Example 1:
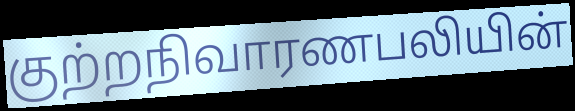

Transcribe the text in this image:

குற்றநிவாரணபலியின்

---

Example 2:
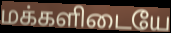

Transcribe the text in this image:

மக்களிடையே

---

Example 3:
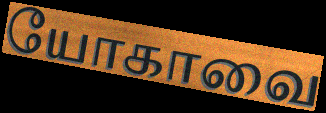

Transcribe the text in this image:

யோகாவை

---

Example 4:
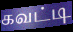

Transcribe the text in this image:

கவட்டி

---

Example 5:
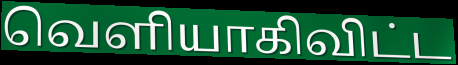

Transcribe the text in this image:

வெளியாகிவிட்ட